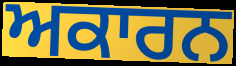
ਅਕਾਰਨ